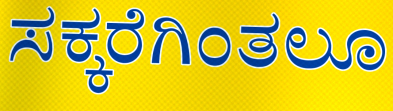
ಸಕ್ಕರೆಗಿಂತಲೂ